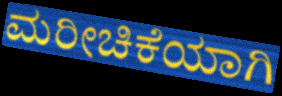
ಮರೀಚಿಕೆಯಾಗಿ